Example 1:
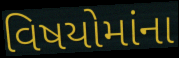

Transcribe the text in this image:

વિષયોમાંના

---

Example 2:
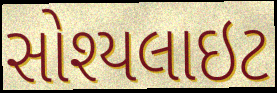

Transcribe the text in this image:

સોશ્યલાઇટ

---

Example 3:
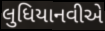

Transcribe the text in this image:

લુધિયાનવીએ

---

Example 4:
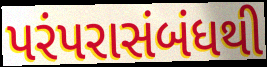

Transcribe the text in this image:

પરંપરાસંબંધથી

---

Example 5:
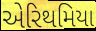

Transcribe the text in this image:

એરિથમિયા